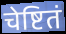
चेष्टितं